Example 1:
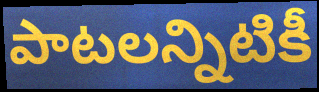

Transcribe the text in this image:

పాటలన్నిటికీ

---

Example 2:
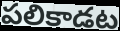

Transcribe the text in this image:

పలికాడట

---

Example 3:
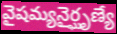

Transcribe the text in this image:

వైషమ్యనైర్ఘృణ్యే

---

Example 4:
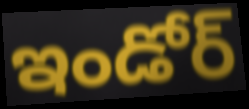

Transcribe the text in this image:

ఇండోర్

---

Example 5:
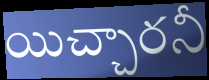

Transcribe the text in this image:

యిచ్చారనీ